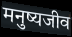
मनुष्यजीव